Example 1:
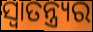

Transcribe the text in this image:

ସ୍ୱାତନ୍ତ୍ର୍ୟର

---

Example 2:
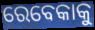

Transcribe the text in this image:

ରେବେକାକୁ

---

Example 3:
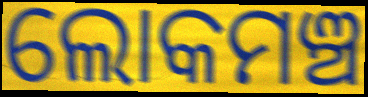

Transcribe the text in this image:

ଲୋକମଞ୍ଚ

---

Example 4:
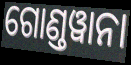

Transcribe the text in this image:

ଗୋଣ୍ଡୱାନା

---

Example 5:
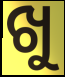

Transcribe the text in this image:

ଖୁ